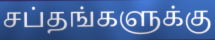
சப்தங்களுக்கு